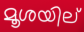
മൂശയില്